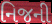
નિજની